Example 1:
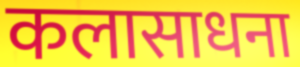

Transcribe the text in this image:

कलासाधना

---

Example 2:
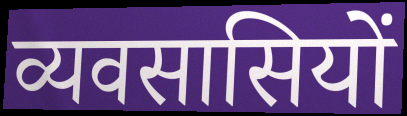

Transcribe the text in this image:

व्यवसासियों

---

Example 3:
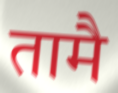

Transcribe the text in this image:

तामै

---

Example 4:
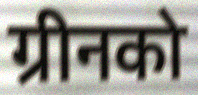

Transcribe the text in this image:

ग्रीनको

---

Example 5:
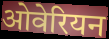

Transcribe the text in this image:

ओवेरियन